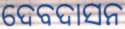
ଦେବଦାସନ